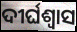
ଦୀର୍ଘଶ୍ବାସ